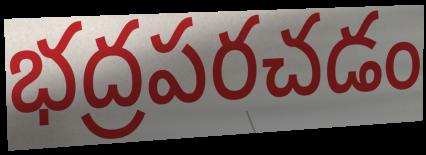
భద్రపరచడం